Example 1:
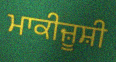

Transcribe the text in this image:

ਮਾਕੀਜ਼ੂਸ਼ੀ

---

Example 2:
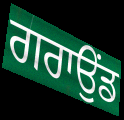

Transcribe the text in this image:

ਗਰਾਉਂਡ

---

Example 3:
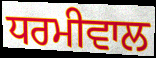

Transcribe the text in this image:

ਧਰਮੀਵਾਲ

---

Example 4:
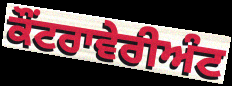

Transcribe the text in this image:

ਕੌਂਟਰਾਵੇਰੀਅੰਟ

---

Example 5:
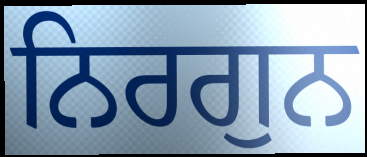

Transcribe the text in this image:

ਨਿਰਗੁਨ